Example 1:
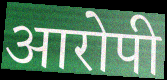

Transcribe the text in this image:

आरोपी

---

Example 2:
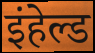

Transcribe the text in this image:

इंहेल्ड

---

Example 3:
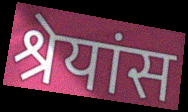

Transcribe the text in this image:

श्रेयांस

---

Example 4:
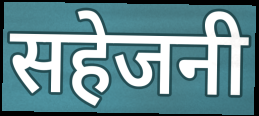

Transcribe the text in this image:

सहेजनी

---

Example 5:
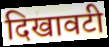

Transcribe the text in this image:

दिखावटी